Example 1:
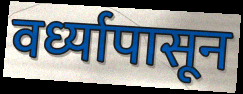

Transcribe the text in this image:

वर्ध्यापासून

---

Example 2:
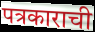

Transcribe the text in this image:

पत्रकाराची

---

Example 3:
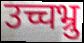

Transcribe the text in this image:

उच्चभ्रु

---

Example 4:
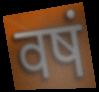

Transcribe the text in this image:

वषं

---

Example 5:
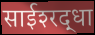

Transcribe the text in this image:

साईश्रद्धा